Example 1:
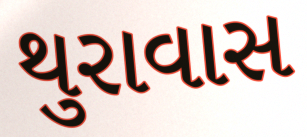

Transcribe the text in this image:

થુરાવાસ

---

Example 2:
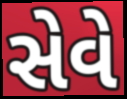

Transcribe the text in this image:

સેવે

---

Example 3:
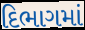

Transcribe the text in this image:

દિભાગમાં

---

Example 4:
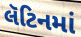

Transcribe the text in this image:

લૅટિનમાં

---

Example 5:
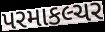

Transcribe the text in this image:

પરમાકલ્ચર